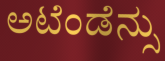
ಅಟೆಂಡೆನ್ಸು